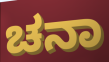
ಚನಾ